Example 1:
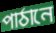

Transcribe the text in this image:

পাঠানে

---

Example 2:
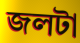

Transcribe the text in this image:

জলটা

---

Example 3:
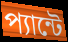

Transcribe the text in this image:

প্যান্টে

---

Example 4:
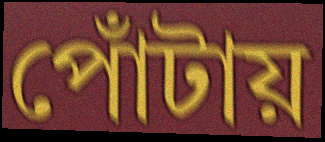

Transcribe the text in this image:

পোঁটায়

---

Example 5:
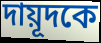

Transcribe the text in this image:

দায়ূদকে